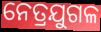
ନେତ୍ରଯୁଗଳ